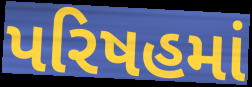
પરિષહમાં